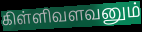
கிள்ளிவளவனும்